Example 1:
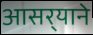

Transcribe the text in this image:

आसर्‍याने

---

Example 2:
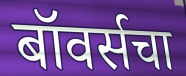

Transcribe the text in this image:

बॉवर्सचा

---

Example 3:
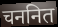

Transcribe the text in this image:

चननित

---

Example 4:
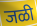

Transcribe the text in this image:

जळी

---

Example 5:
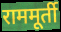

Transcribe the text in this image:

राममूर्ती